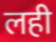
लही